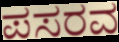
ಪಸರವ